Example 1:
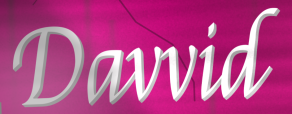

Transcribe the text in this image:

Davvid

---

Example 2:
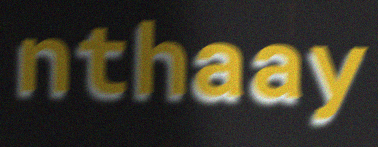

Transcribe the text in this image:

nthaay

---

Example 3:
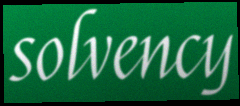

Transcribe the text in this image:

solvency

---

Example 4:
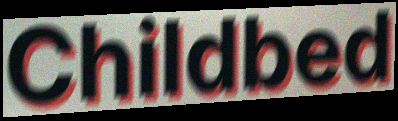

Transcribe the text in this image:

Childbed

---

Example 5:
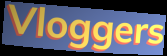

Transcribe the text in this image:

Vloggers